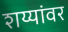
शय्यांवर